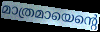
മാത്രമായെന്റെ